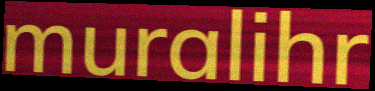
muralihr